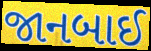
જાનબાઈ